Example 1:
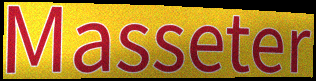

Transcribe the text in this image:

Masseter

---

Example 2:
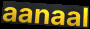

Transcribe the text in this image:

aanaal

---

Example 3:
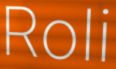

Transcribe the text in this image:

Roli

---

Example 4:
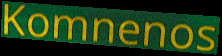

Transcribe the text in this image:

Komnenos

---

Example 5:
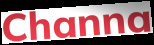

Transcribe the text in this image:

Channa